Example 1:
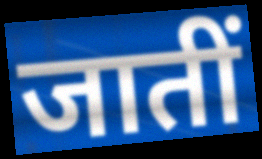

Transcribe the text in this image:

जातीं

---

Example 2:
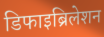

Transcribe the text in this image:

डिफाइब्रिलेशन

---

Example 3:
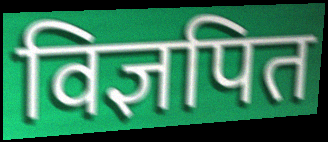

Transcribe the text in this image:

विज्ञपित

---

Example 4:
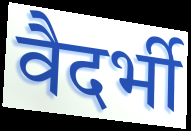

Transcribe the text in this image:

वैदर्भी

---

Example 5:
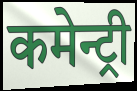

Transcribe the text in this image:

कमेन्ट्री